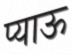
प्याऊ